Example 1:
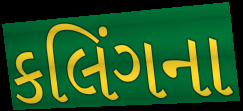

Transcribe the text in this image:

કલિંગના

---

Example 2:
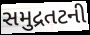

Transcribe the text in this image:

સમુદ્રતટની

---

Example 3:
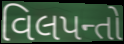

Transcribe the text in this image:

વિલપન્તો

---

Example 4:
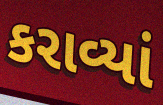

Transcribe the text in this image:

કરાવ્યાં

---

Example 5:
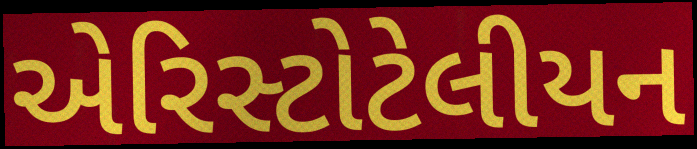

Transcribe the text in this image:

એરિસ્ટોટેલીયન